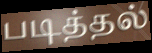
படித்தல்